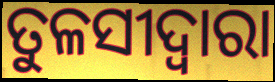
ତୁଳସୀଦ୍ବାରା